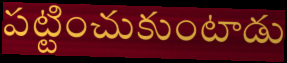
పట్టించుకుంటాడు